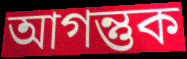
আগন্তুক